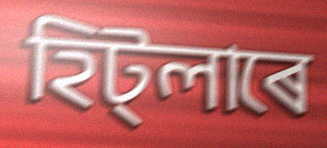
হিট্‌লাৰে